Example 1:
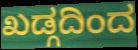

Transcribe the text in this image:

ಖಡ್ಗದಿಂದ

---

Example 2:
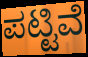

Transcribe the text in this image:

ಪಟ್ಟಿವೆ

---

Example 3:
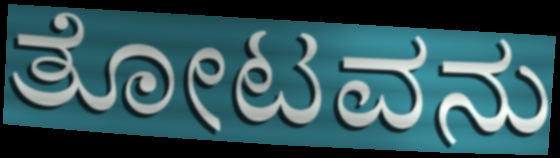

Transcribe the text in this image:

ತೋಟವನು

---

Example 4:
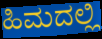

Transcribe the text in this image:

ಹಿಮದಲ್ಲಿ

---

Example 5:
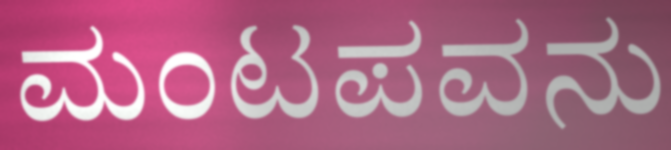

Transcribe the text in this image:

ಮಂಟಪವನು